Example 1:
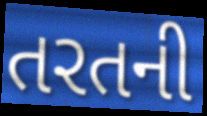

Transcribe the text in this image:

તરતની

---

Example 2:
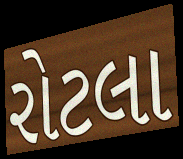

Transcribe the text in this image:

રોટલા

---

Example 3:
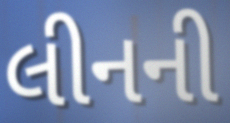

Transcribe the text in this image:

લીનની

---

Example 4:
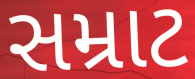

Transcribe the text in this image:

સમ્રાટ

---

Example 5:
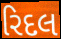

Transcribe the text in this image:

રિદલ